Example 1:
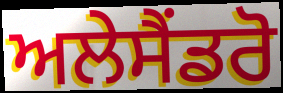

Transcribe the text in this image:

ਅਲੇਸੈਂਡਰੋ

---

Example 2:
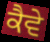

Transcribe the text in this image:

ਕੈਵੇ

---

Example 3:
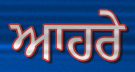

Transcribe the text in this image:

ਆਹਰੇ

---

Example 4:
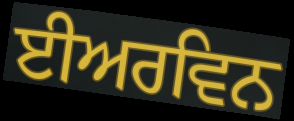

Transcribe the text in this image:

ਈਅਰਵਿਨ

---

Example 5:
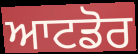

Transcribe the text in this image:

ਆਟਡੋਰ